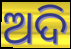
ଅଦି